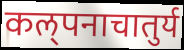
कल्पनाचातुर्य